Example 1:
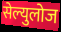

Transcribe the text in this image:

सेल्युलोज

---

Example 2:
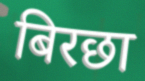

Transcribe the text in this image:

बिरछा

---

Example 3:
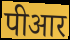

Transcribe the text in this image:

पीआर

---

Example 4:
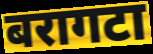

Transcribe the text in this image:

बरागटा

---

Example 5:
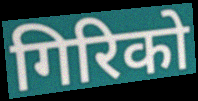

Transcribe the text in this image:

गिरिको